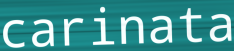
carinata